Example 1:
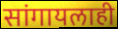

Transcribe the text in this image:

सांगायलाही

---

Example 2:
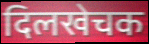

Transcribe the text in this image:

दिलखेचक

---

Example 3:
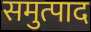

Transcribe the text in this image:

समुत्पाद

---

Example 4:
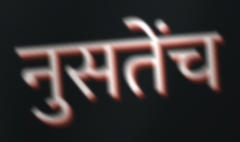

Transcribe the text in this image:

नुसतेंच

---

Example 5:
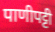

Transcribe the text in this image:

पाणीपट्टी